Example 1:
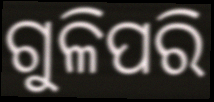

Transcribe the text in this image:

ଗୁଳିପରି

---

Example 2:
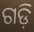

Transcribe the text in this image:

ଗଡ଼ି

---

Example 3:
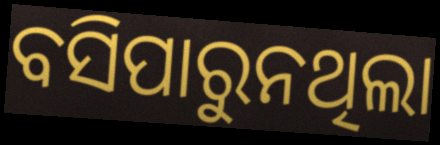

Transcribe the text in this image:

ବସିପାରୁନଥିଲା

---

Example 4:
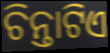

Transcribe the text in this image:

ଚିନ୍ତାଟିଏ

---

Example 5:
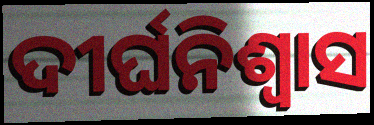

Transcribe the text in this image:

ଦୀର୍ଘନିଶ୍ବାସ